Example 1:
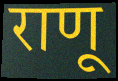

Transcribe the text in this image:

राणू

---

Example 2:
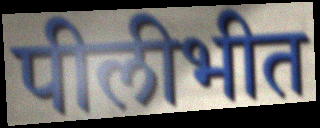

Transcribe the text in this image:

पीलीभीत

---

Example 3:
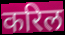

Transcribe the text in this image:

करिल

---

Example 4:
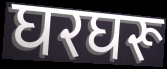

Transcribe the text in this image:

घरघरू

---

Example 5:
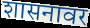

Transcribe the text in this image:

शासनावर